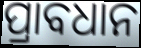
ପ୍ରାବଧାନ